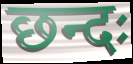
छन्दः